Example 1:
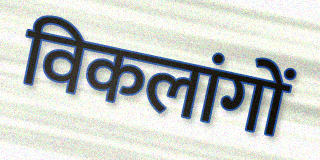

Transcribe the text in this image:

विकलांगों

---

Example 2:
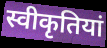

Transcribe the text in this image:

स्वीकृतियां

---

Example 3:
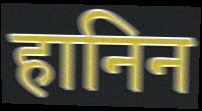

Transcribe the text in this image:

हानिन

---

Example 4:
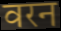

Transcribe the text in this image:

वरन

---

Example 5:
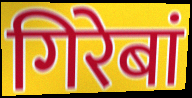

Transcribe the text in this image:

गिरेबां